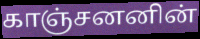
காஞ்சனனின்